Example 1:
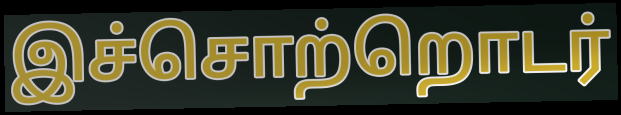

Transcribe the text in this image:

இச்சொற்றொடர்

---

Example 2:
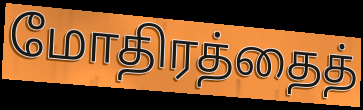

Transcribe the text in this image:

மோதிரத்தைத்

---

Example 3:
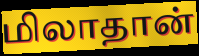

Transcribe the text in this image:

மிலாதான்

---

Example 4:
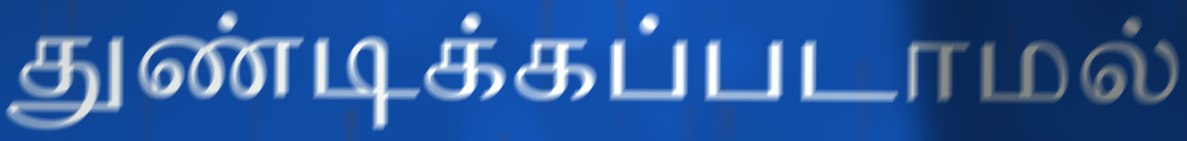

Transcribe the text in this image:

துண்டிக்கப்படாமல்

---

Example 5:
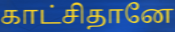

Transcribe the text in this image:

காட்சிதானே